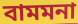
বামমনা